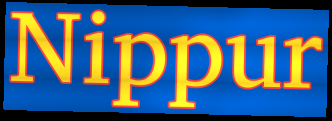
Nippur